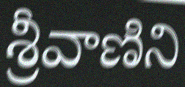
శ్రీవాణిని